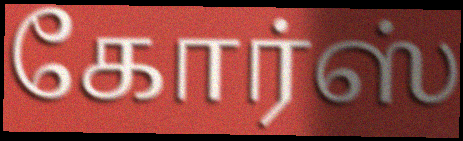
கோர்ஸ்